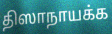
திஸாநாயக்க